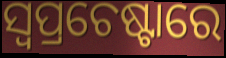
ସ୍ଵପ୍ରଚେଷ୍ଟାରେ